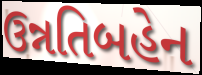
ઉન્નતિબહેન